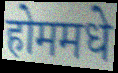
होममधे